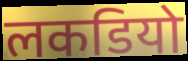
लकडियो